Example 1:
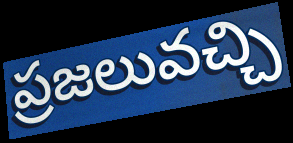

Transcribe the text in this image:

ప్రజలువచ్చి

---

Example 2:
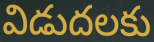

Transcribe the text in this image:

విడుదలకు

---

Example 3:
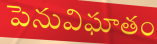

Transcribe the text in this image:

పెనువిఘాతం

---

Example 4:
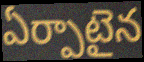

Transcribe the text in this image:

ఏర్పాటైన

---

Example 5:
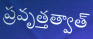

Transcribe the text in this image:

ప్రవృత్తత్వాత్